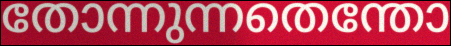
തോന്നുന്നതെന്തോ